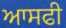
ਆਸਫੀ